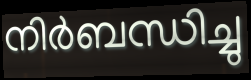
നിർബന്ധിച്ചു